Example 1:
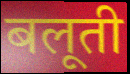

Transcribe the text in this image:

बलूती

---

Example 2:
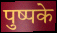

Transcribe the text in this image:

पुष्पके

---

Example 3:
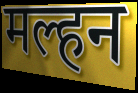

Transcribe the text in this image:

मल्हन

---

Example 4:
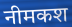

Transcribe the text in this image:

नीमकश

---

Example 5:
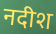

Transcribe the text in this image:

नदीश